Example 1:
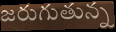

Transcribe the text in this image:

జరుగుతున్న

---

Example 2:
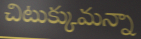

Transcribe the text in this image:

చిటుక్కుమన్నా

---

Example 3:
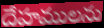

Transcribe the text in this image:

దేహములను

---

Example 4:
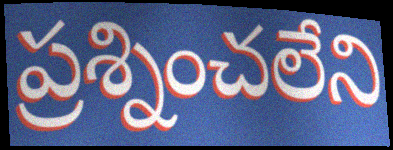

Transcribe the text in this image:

ప్రశ్నించలేని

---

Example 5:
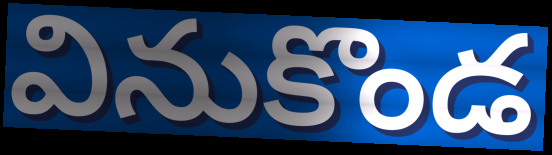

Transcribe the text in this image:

వినుకొండ